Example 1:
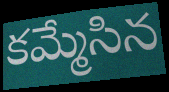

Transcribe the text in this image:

కమ్మేసిన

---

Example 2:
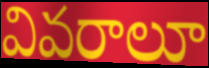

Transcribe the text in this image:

వివరాలూ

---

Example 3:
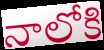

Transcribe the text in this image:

నాలోకి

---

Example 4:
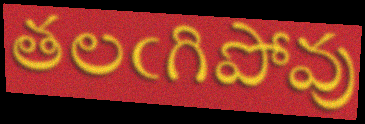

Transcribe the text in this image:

తలఁగిపోవు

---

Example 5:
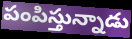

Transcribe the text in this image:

పంపిస్తున్నాడు